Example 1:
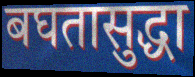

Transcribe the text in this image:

बघतासुद्धा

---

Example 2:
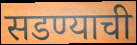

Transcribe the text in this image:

सडण्याची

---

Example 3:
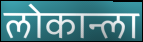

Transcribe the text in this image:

लोकान्ला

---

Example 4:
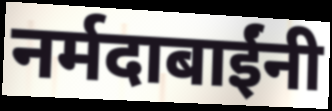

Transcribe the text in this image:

नर्मदाबाईंनी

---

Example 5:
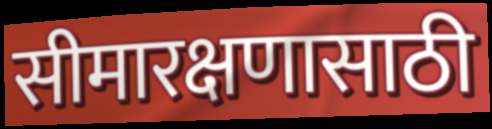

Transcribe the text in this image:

सीमारक्षणासाठी